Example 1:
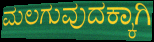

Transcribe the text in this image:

ಮಲಗುವುದಕ್ಕಾಗಿ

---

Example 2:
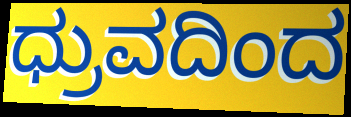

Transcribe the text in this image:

ಧ್ರುವದಿಂದ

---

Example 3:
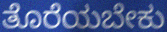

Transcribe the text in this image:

ತೊರೆಯಬೇಕು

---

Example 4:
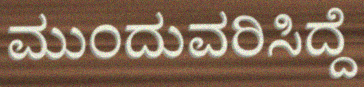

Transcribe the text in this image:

ಮುಂದುವರಿಸಿದ್ದೆ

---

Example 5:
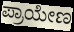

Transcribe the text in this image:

ಪ್ರಾಯೇಣ